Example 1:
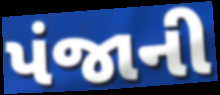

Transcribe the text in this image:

પંજાની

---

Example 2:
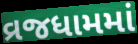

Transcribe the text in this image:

વ્રજધામમાં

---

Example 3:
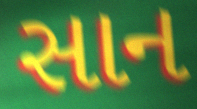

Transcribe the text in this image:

સાન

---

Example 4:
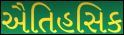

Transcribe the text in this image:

ઐતિહસિક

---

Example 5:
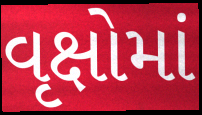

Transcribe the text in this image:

વૃક્ષોમાં